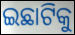
ଇଛାଟିକୁ